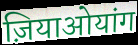
ज़ियाओयांग